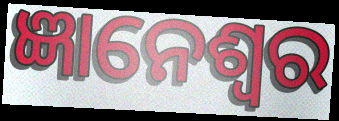
ଜ୍ଞାନେଶ୍ୱର